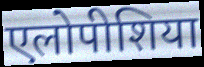
एलोपीशिया